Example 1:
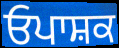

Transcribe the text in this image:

ਓਪਾਸ਼ਕ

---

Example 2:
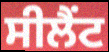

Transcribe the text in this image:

ਸੀਲੈਂਟ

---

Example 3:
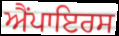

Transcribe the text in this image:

ਐਂਪਾਇਰਸ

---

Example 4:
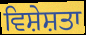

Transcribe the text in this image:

ਵਿਸ਼ੇਸ਼ਤਾ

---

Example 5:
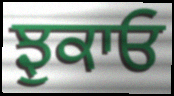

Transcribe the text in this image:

ਝੁਕਾਓ